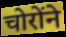
चोरोंने